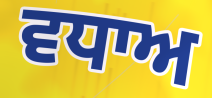
ਵਧਾਅ